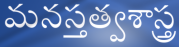
మనస్తత్వశాస్త్ర